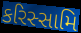
કરિસ્સામિ